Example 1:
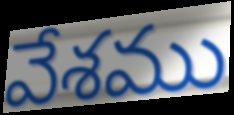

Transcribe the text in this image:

వేశము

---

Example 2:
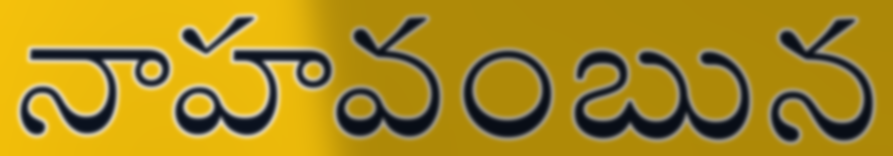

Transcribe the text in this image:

నాహవంబున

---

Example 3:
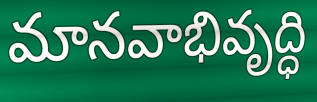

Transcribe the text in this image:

మానవాభివృద్ధి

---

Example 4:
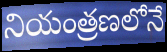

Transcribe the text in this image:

నియంత్రణలోనే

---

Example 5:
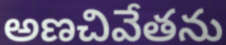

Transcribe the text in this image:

అణచివేతను